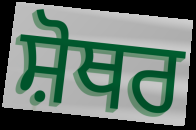
ਸ਼ੋਥਰ